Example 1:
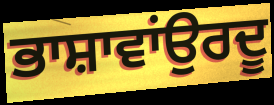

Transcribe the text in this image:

ਭਾਸ਼ਾਵਾਂਉਰਦੂ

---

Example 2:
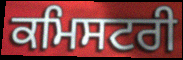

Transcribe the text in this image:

ਕਮਿਸਟਰੀ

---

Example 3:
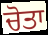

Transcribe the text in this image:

ਚੋਤਾ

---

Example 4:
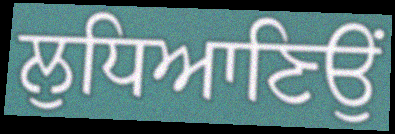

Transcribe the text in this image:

ਲੁਧਿਆਣਿਉਂ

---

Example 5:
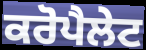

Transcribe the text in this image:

ਕਰੋਪੈਲੇਟ